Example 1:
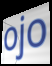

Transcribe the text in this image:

ojo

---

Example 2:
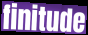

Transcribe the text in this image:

finitude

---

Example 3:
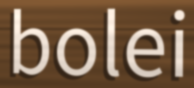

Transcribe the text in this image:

bolei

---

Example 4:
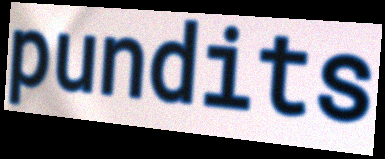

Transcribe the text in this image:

pundits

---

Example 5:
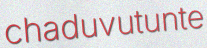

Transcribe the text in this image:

chaduvutunte